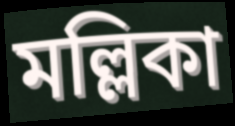
মল্লিকা